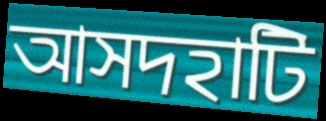
আসদহাটি